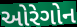
ઓરેગોન